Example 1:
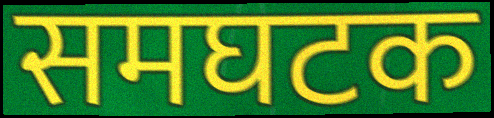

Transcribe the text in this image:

समघटक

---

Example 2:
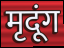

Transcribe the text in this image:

मृदूंग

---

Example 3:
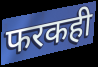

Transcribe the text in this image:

फरकही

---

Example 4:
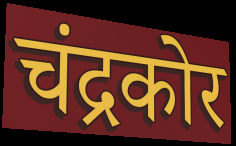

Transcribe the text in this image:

चंद्रकोर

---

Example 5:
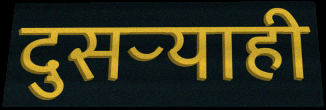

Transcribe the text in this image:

दुसऱ्याही